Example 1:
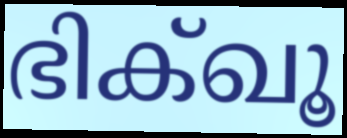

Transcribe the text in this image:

ഭിക്ഖൂ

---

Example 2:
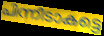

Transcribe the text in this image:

പിന്നീടാകട്ടെ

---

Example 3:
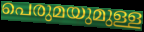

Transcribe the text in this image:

പെരുമയുമുള്ള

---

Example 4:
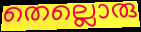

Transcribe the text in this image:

തെല്ലൊരു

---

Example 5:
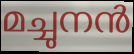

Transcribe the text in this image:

മച്ചുനൻ